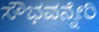
ಸೌಭವನ್ನೇರಿ